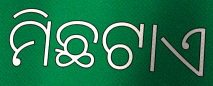
ମିଛଟାଏ